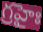
గ్రహైః